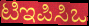
ಟಿಇಪಿಸಿಒ